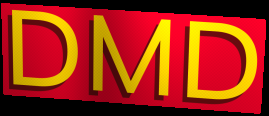
DMD